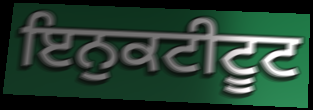
ਇਨੁਕਟੀਟੂਟ